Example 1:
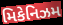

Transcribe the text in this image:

મિકેનિઝમ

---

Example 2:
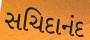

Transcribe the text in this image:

સચિદાનંદ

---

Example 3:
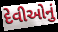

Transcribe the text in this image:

દેવીઓનું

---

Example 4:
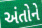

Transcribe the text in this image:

અંતોને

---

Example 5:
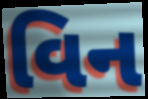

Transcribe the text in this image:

વિન